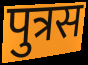
पुत्रस